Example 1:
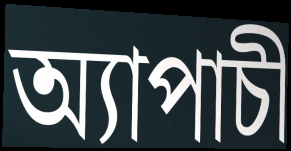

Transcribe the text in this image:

অ্যাপাচী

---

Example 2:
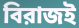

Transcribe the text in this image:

বিরাজই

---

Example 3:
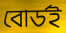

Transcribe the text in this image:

বোর্ডই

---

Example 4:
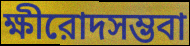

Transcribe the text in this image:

ক্ষীরোদসম্ভবা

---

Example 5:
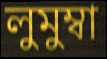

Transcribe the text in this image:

লুমুম্বা